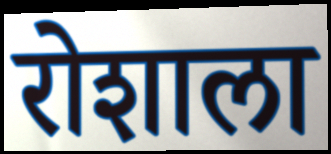
रोशाला